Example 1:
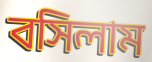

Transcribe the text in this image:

বসিলাম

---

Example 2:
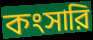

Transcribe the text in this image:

কংসারি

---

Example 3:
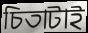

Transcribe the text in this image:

চিতাটাই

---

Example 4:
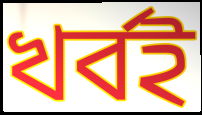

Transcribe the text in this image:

খর্বই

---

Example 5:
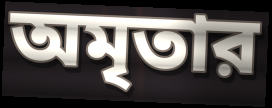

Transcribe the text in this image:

অমৃতার